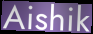
Aishik